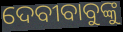
ଦେବୀବାବୁଙ୍କୁ